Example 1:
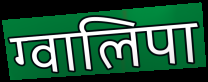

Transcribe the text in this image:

ग्वालिपा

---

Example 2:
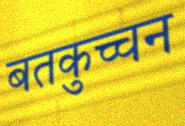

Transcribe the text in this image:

बतकुच्चन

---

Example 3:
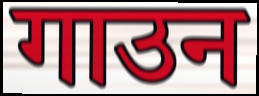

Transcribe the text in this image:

गाउन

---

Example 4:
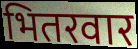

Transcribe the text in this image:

भितरवार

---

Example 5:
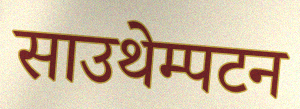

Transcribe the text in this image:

साउथेम्पटन